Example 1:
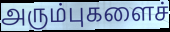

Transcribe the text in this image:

அரும்புகளைச்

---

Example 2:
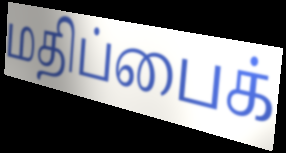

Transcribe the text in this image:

மதிப்பைக்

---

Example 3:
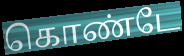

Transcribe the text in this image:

கொண்டே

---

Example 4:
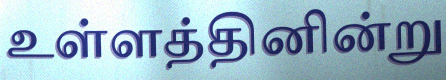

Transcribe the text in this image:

உள்ளத்தினின்று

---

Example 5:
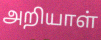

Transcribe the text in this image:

அறியாள்